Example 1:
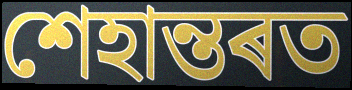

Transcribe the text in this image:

শেহান্তৰত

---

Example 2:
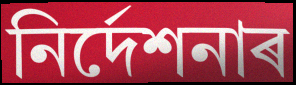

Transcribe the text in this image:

নিৰ্দেশনাৰ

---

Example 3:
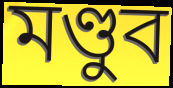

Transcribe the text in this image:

মণ্ডুব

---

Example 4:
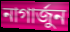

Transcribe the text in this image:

নাগাৰ্জুন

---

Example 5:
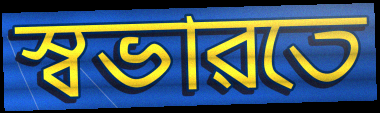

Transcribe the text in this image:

স্বভাৱতে